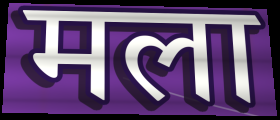
मला